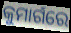
କୁମାର୍ଗରେ